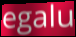
egalu